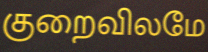
குறைவிலமே